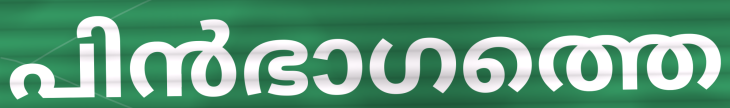
പിൻഭാഗത്തെ